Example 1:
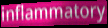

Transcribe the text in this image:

inflammatory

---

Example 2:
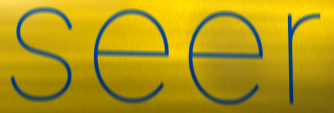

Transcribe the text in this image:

seer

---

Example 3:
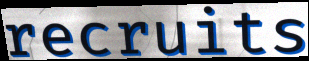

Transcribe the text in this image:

recruits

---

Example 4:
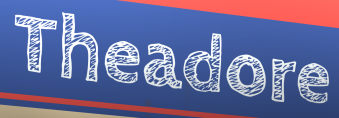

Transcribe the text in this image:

Theadore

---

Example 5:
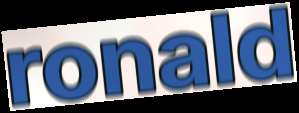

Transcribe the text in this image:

ronald